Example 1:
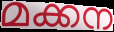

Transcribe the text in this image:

മക്കന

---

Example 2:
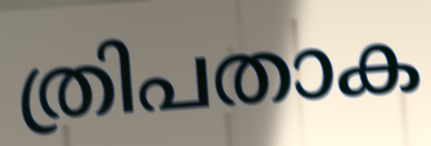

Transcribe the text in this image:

ത്രിപതാക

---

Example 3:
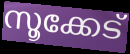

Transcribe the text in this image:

സൂക്കേട്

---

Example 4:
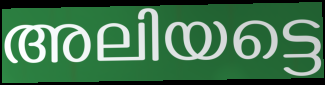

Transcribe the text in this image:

അലിയട്ടെ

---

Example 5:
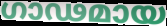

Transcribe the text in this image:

ഗാഢമായ